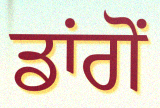
ਡਾਂਗੋਂ